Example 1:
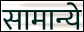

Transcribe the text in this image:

सामान्ये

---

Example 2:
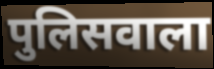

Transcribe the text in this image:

पुलिसवाला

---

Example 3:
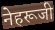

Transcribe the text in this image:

नेहरूजी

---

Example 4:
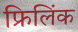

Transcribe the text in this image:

फ्रिलिंक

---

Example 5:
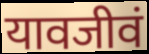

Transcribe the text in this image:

यावजीवं